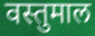
वस्तुमाल